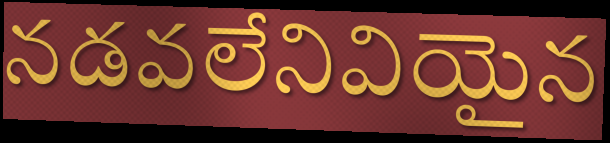
నడవలేనివియైన